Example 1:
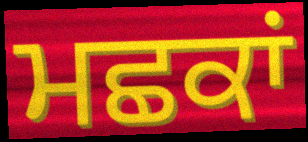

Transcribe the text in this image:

ਮਛਕਾਂ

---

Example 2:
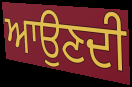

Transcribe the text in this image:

ਆਉਣਦੀ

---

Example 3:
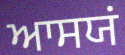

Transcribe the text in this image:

ਆਸਯਂ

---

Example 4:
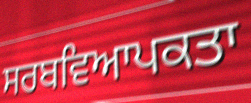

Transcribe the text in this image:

ਸਰਬਵਿਆਪਕਤਾ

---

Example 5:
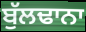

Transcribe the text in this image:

ਬੁੱਲਢਾਨਾ